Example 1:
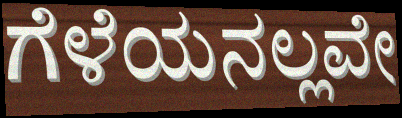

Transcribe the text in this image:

ಗೆಳೆಯನಲ್ಲವೇ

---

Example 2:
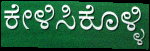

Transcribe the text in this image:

ಕೇಳಿಸಿಕೊಳ್ಳಿ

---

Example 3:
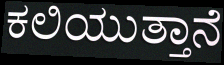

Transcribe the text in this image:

ಕಲಿಯುತ್ತಾನೆ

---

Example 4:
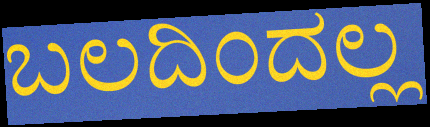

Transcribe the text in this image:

ಬಲದಿಂದಲ್ಲ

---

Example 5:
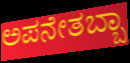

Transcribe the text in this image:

ಅಪನೇತಬ್ಬಾ